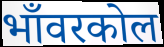
भाँवरकोल